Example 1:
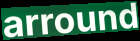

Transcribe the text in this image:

arround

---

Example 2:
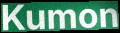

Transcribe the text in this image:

Kumon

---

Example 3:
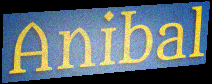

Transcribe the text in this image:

Anibal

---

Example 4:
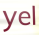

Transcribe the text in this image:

yel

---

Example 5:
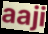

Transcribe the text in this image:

aaji